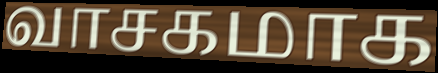
வாசகமாக